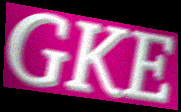
GKE